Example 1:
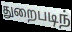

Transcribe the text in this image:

துறைபடிந்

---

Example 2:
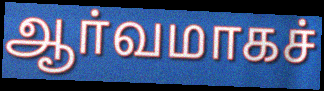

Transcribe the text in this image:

ஆர்வமாகச்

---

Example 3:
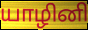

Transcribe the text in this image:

யாழினி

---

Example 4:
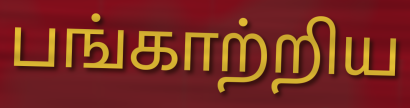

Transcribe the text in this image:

பங்காற்றிய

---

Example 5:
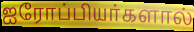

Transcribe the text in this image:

ஐரோப்பியர்களால்